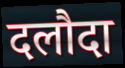
दलौदा